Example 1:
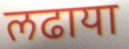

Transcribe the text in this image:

लढाया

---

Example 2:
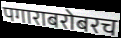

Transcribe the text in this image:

पगाराबरोबरच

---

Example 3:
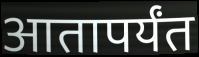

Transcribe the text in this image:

आतापर्यंत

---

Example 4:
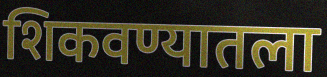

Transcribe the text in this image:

शिकवण्यातला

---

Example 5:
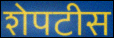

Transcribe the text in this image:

शेपटीस